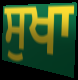
ਸੁਖਾ